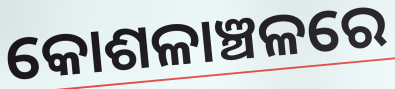
କୋଶଳାଞ୍ଚଳରେ